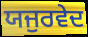
ਯਜੁਰਵੇਦ